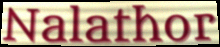
Nalathor